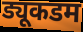
ड्यूकडम